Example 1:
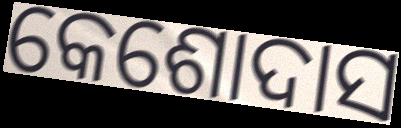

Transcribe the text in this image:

କେଶୋଦାସ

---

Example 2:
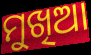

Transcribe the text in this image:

ମୁଖିଆ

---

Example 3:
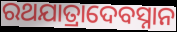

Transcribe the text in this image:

ରଥଯାତ୍ରାଦେବସ୍ନାନ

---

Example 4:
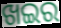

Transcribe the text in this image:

ଖଇର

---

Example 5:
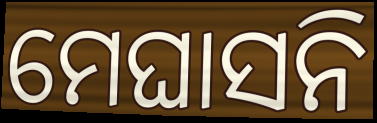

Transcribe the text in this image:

ମେଘାସନି